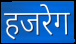
हजरेग